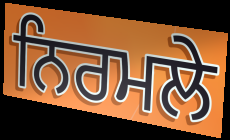
ਨਿਰਮਲੇ